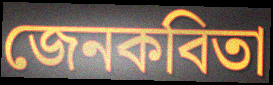
জেনকবিতা